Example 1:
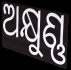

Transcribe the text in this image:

ଅକ୍ଷୁଣ୍ଣ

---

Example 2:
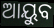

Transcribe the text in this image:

ଆୟୁବ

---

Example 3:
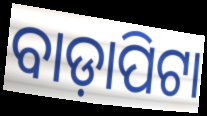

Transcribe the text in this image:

ବାଡ଼ାପିଟା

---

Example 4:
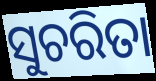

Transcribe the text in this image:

ସୁଚରିତା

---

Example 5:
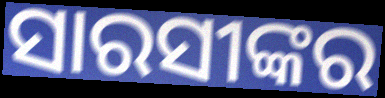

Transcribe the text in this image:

ସାରସୀଙ୍କର